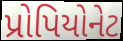
પ્રોપિયોનેટ